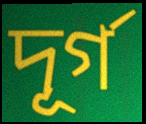
দূৰ্গ